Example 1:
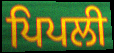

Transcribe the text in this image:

ਪਿਪਲੀ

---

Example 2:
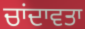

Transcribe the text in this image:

ਚਾਂਦਾਵਤਾ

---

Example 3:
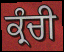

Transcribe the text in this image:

ਕ੍ਰੰਚੀ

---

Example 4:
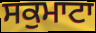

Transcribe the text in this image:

ਸਕੁਮਾਟਾ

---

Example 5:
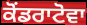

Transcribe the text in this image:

ਕੋਂਡਰਾਟੋਵਾ